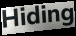
Hiding